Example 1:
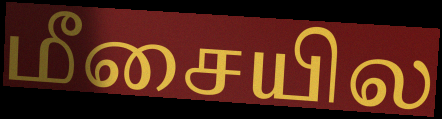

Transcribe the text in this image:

மீசையில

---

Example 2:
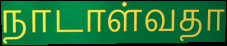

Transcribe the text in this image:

நாடாள்வதா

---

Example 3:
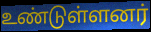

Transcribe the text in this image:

உண்டுள்ளனர்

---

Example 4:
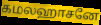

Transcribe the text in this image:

கமலஹாசனே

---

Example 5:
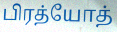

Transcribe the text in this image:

பிரத்யோத்